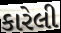
કારેલી